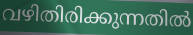
വഴിതിരിക്കുന്നതിൽ